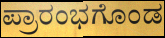
ಪ್ರಾರಂಭಗೊಂಡ